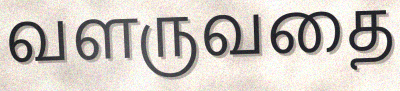
வளருவதை